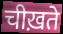
चीख़ते